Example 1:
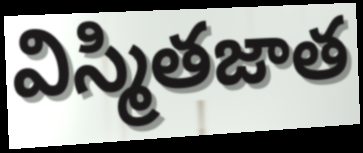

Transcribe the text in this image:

విస్మితజాత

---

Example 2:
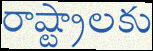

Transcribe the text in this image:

రాష్ట్రాలకు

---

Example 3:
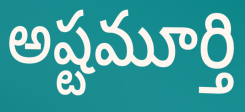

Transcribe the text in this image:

అష్టమూర్తి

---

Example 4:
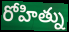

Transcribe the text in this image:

రోహిత్ను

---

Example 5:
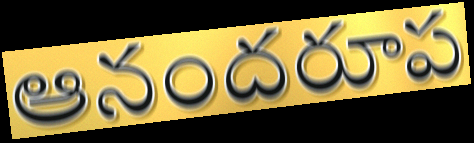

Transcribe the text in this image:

ఆనందరూప